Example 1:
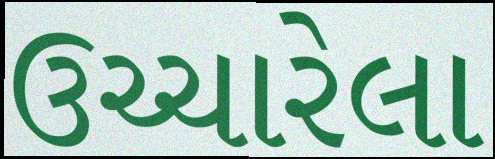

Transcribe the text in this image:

ઉચ્ચારેલા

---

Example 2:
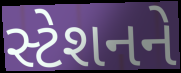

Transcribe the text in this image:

સ્ટેશનને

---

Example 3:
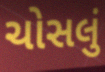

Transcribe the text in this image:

ચોસલું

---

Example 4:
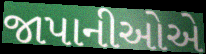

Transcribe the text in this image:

જાપાનીઓએ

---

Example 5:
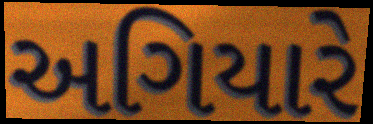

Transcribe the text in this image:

અગિયારે